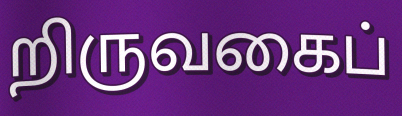
றிருவகைப்